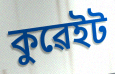
কুৱেইট